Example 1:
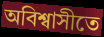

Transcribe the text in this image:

অবিশ্বাসীতে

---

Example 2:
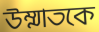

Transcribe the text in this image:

উম্মাতকে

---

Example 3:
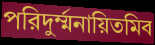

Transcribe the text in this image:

পরিদুর্ম্মনায়িতমিব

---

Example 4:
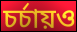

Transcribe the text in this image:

চর্চায়ও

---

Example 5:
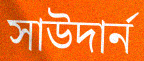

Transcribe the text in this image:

সাউদার্ন